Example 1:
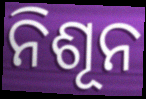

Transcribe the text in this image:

ନିଶୂନ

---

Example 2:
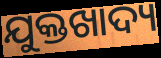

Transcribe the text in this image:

ଯୁକ୍ତଖାଦ୍ୟ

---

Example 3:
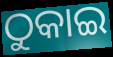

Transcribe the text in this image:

ଠୁକାଇ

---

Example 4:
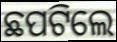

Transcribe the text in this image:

ଛପଟିଲେ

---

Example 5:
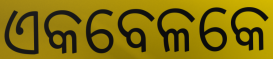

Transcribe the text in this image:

ଏକବେଳକେ